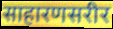
साहारणसरीर